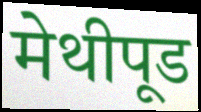
मेथीपूड